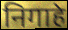
निगाहे